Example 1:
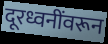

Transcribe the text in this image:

दूरध्वनींवरून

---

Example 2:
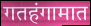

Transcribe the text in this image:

गतहंगामात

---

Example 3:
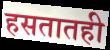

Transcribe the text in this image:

हसतातही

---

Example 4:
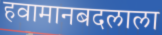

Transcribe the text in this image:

हवामानबदलाला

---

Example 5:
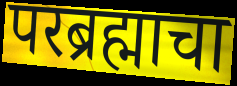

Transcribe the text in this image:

परब्रह्माचा